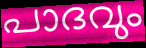
പാദവും